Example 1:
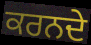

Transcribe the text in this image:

ਕਰਨਦੇ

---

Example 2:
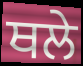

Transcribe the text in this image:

ਥਲੇ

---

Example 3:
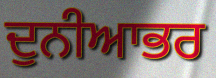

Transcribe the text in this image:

ਦੁਨੀਆਭਰ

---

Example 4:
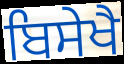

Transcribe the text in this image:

ਬਿਸੇਖੈ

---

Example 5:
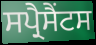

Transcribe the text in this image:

ਸਪ੍ਰੈਸੈਂਟਸ